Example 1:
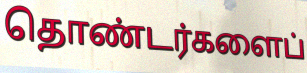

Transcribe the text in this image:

தொண்டர்களைப்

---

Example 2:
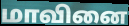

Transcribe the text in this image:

மாவினை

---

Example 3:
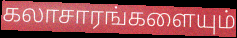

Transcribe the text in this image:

கலாசாரங்களையும்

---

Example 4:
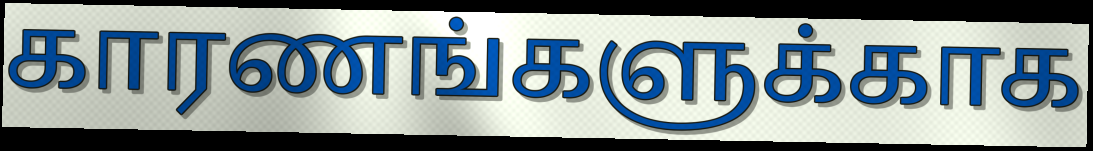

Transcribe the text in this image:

காரணங்களுக்காக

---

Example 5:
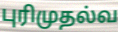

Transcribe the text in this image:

புரிமுதல்வ